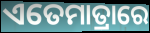
ଏତେମାତ୍ରାରେ